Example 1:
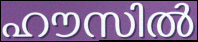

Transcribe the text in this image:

ഹൗസിൽ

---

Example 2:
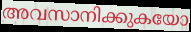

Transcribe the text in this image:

അവസാനിക്കുകയോ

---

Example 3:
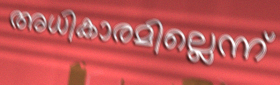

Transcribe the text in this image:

അധികാരമില്ലെന്ന്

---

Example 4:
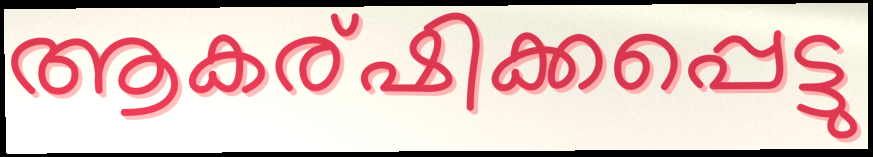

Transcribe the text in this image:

ആകര്ഷിക്കപ്പെട്ടു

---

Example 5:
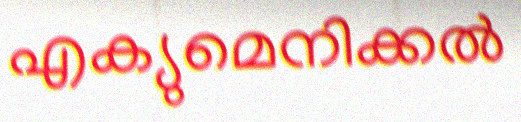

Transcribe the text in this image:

എക്യുമെനിക്കൽ